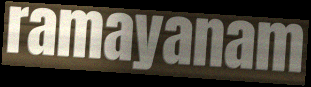
ramayanam